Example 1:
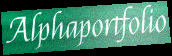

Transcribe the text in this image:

Alphaportfolio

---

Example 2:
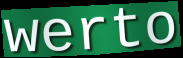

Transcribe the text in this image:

werto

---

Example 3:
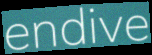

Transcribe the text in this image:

endive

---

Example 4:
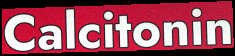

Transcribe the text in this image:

Calcitonin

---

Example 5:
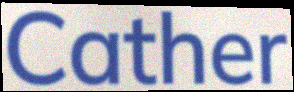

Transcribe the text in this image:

Cather